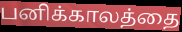
பனிக்காலத்தை